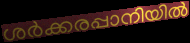
ശർക്കരപ്പാനിയിൽ